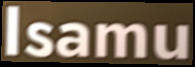
Isamu